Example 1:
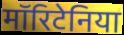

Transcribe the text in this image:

मॉरिटेनिया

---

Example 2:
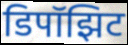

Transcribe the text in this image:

डिपॉझिट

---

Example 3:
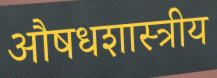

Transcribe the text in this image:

औषधशास्त्रीय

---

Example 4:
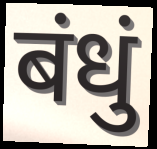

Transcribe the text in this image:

बंधुं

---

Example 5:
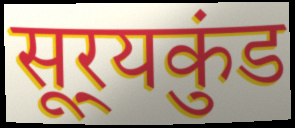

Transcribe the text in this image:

सूर्यकुंड